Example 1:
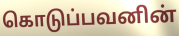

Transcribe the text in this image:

கொடுப்பவனின்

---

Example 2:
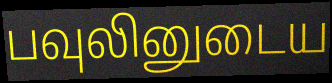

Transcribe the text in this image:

பவுலினுடைய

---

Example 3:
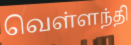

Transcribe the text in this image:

வெள்ளந்தி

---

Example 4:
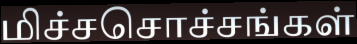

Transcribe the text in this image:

மிச்சசொச்சங்கள்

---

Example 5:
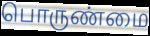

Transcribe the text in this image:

பொருண்மை